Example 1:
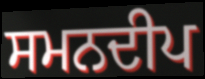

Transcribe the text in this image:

ਸਮਨਦੀਪ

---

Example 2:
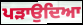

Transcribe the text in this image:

ਪੜਾਉਦਿਆ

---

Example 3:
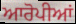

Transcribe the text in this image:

ਆਰੋਪੀਆਂ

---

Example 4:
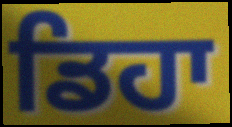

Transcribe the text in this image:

ਡਿਹਾ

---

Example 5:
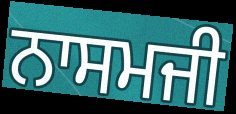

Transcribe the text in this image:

ਨਾਸਮਜੀ